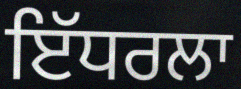
ਇੱਧਰਲਾ